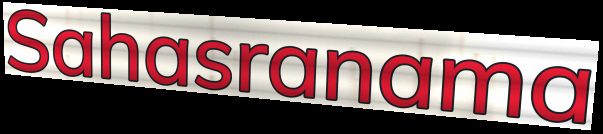
Sahasranama